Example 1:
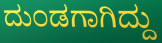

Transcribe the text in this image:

ದುಂಡಗಾಗಿದ್ದು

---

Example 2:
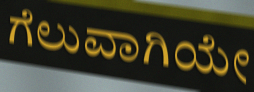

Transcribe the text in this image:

ಗೆಲುವಾಗಿಯೇ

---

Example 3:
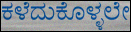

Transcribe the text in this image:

ಕಳೆದುಕೊಳ್ಳಲೇ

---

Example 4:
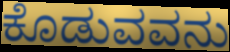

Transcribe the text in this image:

ಕೊಡುವವನು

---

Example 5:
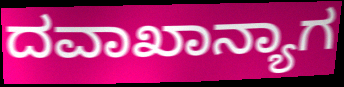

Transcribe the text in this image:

ದವಾಖಾನ್ಯಾಗ